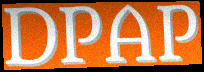
DPAP